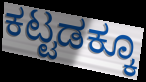
ಕಟ್ಟಡಕ್ಕೂ